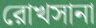
রোখসানা